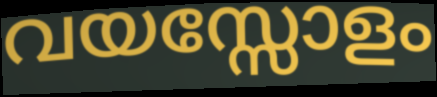
വയസ്സോളം